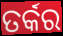
ତର୍କର